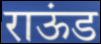
राऊंड